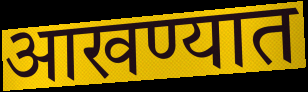
आखण्यात